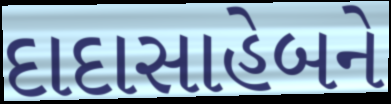
દાદાસાહેબને